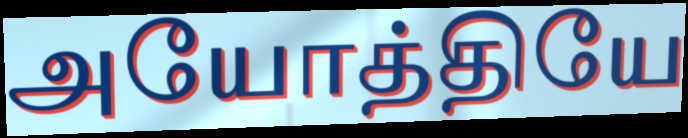
அயோத்தியே